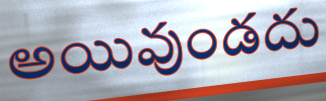
అయివుండదు